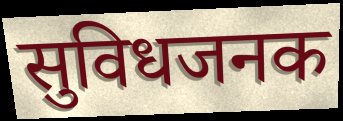
सुविधजनक